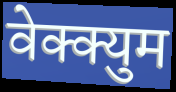
वेक्क्युम